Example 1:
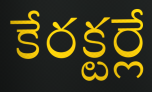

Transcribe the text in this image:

కేరక్టర్లే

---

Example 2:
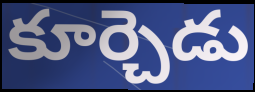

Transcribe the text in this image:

కూర్చెడు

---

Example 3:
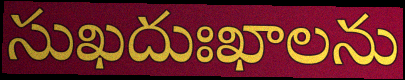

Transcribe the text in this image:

సుఖదుఃఖాలను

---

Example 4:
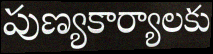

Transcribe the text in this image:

పుణ్యకార్యాలకు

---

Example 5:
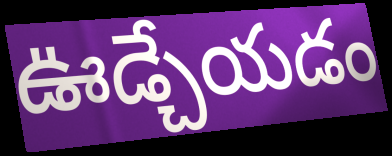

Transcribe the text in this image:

ఊడ్చేయడం